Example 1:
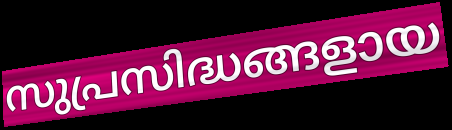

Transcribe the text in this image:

സുപ്രസിദ്ധങ്ങളായ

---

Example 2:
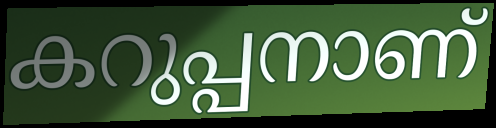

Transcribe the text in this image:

കറുപ്പനാണ്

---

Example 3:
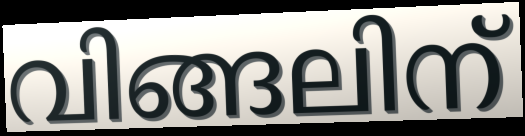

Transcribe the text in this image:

വിങ്ങലിന്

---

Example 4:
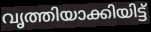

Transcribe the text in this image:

വൃത്തിയാക്കിയിട്ട്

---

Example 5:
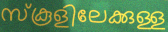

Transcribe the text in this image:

സ്കൂളിലേക്കുള്ള